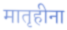
मातृहीना